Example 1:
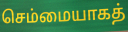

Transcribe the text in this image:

செம்மையாகத்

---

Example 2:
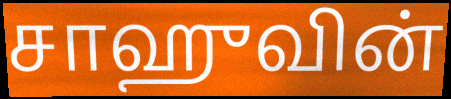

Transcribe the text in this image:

சாஹுவின்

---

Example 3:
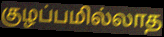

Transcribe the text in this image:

குழப்பமில்லாத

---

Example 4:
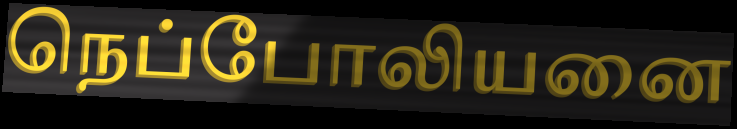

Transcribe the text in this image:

நெப்போலியனை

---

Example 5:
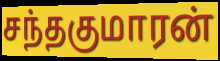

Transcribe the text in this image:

சந்தகுமாரன்